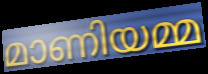
മാണിയമ്മ